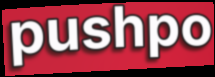
pushpo